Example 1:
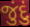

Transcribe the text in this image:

જુંદું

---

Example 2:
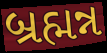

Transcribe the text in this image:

બ્રહ્મન્ન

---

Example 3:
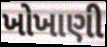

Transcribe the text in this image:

ખોખાણી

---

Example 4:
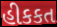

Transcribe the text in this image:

હીકકત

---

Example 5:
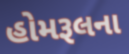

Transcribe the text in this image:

હોમરૂલના